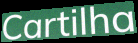
Cartilha